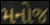
મનોજ